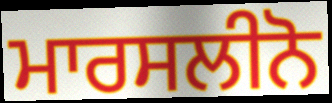
ਮਾਰਸਲੀਨੋ